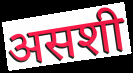
असशी